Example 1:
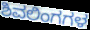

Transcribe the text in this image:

ಶಿವಲಿಂಗಗಳ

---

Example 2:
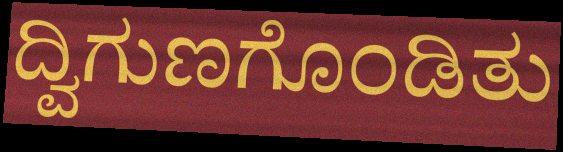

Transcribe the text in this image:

ದ್ವಿಗುಣಗೊಂಡಿತು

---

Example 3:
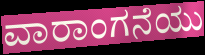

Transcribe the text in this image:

ವಾರಾಂಗನೆಯು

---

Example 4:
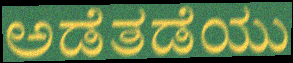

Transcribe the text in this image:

ಅಡೆತಡೆಯು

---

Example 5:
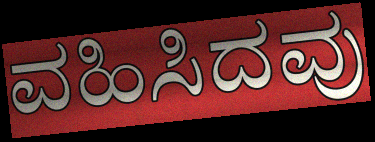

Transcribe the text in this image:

ವಹಿಸಿದವು